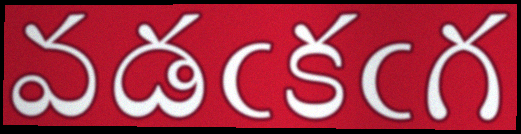
వడఁకఁగ